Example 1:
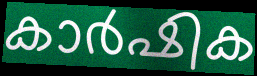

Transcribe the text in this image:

കാർഷിക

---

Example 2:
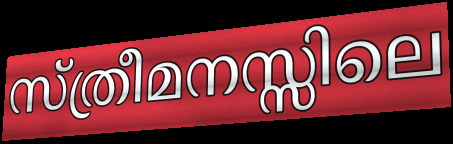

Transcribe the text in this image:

സ്ത്രീമനസ്സിലെ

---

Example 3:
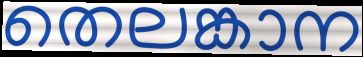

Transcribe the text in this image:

തെലങ്കാന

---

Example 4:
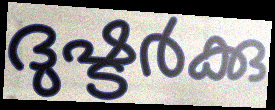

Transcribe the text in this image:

ദുഷ്ടർക്കു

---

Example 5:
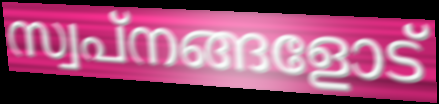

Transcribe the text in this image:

സ്വപ്നങ്ങളോട്